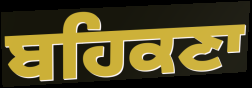
ਬਹਿਕਣਾ